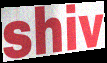
shiv